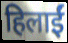
हिलाईं